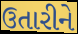
ઉતારીને